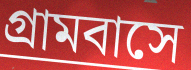
গ্রামবাসে